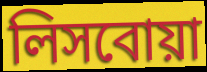
লিসবোয়া